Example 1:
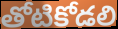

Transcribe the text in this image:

తోటికోడలి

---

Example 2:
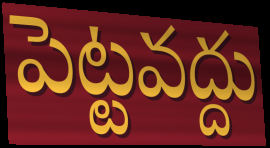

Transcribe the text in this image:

పెట్టవద్దు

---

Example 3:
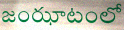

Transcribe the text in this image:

జంఝాటంలో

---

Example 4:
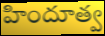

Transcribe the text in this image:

హిందూత్వ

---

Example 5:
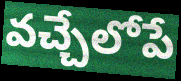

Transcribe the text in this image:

వచ్చేలోపే